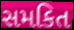
સમકિત